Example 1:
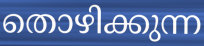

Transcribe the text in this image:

തൊഴിക്കുന്ന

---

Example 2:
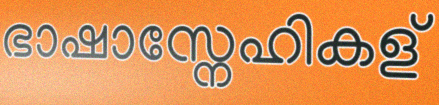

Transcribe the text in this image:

ഭാഷാസ്നേഹികള്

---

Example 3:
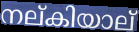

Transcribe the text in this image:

നല്കിയാല്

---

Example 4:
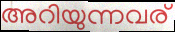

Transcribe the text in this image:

അറിയുന്നവര്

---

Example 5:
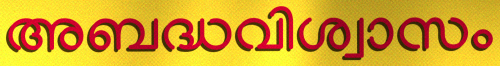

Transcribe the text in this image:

അബദ്ധവിശ്വാസം